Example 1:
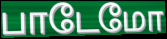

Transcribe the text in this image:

பாடேமோ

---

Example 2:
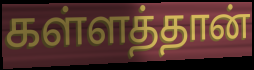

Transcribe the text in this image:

கள்ளத்தான்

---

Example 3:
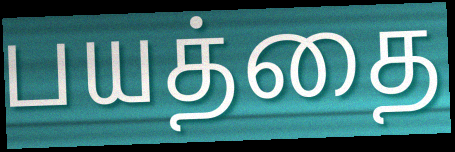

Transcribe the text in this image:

பயத்தை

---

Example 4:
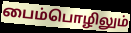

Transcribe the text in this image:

பைம்பொழிலும்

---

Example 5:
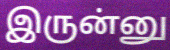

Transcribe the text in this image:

இருன்னு